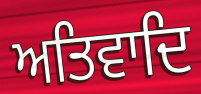
ਅਤਿਵਾਦਿ